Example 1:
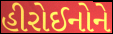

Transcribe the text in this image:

હીરોઈનોને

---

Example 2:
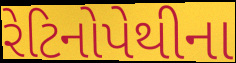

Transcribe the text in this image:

રેટિનોપેથીના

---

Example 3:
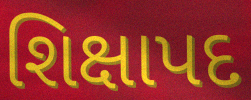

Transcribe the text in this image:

શિક્ષાપદ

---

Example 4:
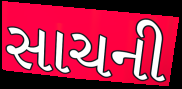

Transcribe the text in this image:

સાચની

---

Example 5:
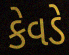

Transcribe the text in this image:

કેવડે